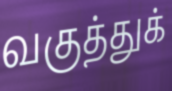
வகுத்துக்